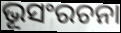
ଭୂସଂରଚନା